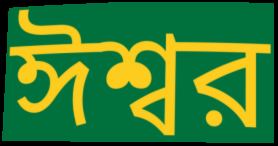
ঈশ্বর